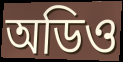
অডিও